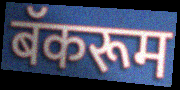
बॅकरूम